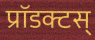
प्रॉडक्टस्